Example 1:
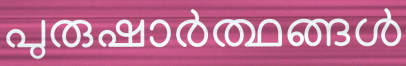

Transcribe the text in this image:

പുരുഷാർത്ഥങ്ങൾ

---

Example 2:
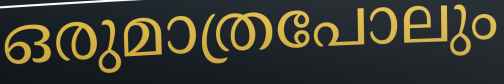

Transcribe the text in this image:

ഒരുമാത്രപോലും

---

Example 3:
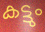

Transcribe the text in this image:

കട്ടും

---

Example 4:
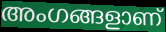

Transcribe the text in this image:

അംഗങ്ങളാണ്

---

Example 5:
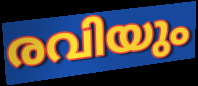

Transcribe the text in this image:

രവിയും